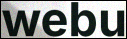
webu